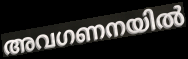
അവഗണനയിൽ